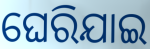
ଘେରିଯାଇ